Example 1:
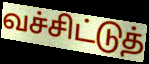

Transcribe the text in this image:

வச்சிட்டுத்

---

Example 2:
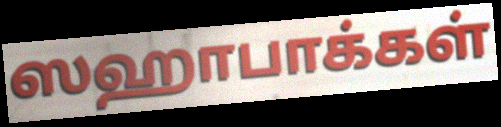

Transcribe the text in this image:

ஸஹாபாக்கள்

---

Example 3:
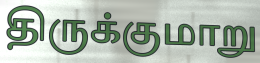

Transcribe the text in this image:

திருக்குமாறு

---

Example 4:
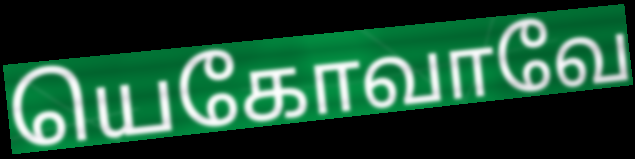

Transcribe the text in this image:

யெகோவாவே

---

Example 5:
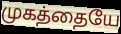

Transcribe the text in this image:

முகத்தையே